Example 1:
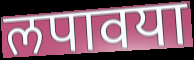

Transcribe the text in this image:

लपावया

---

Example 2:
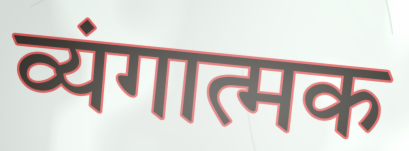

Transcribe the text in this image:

व्यंगात्मक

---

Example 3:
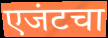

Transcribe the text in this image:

एजंटचा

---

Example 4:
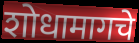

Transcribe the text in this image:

शोधामागचे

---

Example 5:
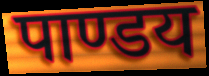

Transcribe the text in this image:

पाण्डय